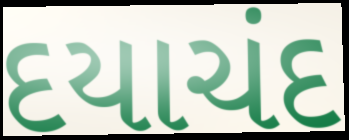
દયાચંદ